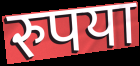
रुपया